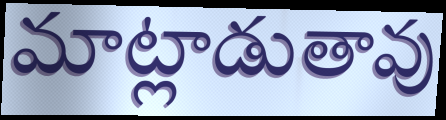
మాట్లాడుతావు